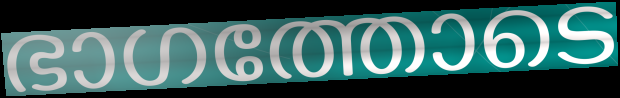
ഭാഗത്തോടെ